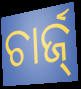
ଚାର୍ଜ୍